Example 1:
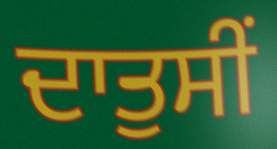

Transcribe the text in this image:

ਦਾਤੁਸੀਂ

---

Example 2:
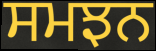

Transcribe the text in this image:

ਸਮਝਨ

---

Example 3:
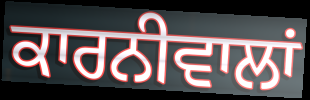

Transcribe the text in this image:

ਕਾਰਨੀਵਾਲਾਂ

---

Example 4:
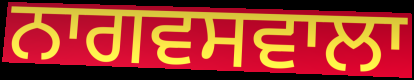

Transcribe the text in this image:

ਨਾਗਵਸਵਾਲਾ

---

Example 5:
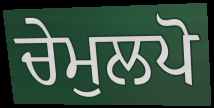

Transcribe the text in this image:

ਚੇਮੁਲਪੋ